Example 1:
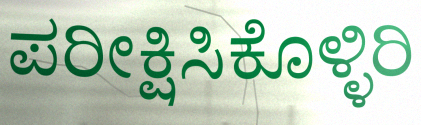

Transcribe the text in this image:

ಪರೀಕ್ಷಿಸಿಕೊಳ್ಳಿರಿ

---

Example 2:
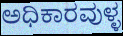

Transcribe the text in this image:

ಅಧಿಕಾರವುಳ್ಳ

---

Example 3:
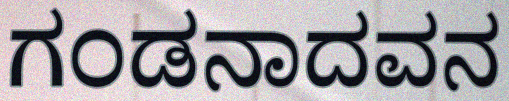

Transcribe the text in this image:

ಗಂಡನಾದವನ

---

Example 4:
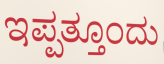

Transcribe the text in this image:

ಇಪ್ಪತ್ತೂಂದು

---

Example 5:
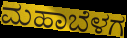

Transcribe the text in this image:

ಮಹಾಬೆಳಗ